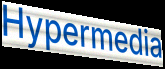
Hypermedia